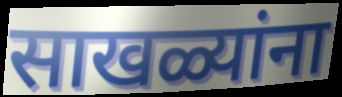
साखळ्यांना